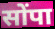
सोंपा